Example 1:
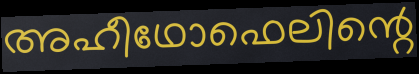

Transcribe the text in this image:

അഹീഥോഫെലിന്റെ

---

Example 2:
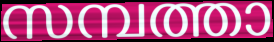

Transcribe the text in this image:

സമ്പത്താ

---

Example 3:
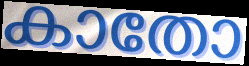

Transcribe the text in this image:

കാതോ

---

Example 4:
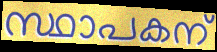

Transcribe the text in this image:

സ്ഥാപകന്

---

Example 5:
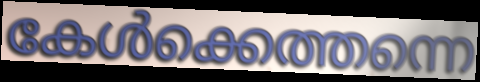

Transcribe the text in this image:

കേൾക്കെത്തന്നെ